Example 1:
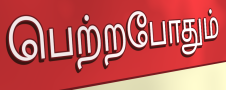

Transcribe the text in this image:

பெற்றபோதும்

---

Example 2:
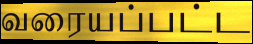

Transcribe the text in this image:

வரையப்பட்ட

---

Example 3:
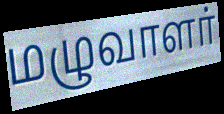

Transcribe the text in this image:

மழுவாளர்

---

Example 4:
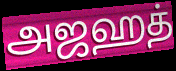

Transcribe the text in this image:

அஜஹத்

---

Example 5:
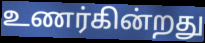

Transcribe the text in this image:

உணர்கின்றது